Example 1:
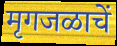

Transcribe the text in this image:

मृगजळाचें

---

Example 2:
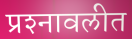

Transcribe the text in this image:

प्रश्नावलीत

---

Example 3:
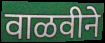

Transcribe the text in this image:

वाळवीने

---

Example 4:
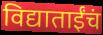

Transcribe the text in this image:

विद्याताईंचं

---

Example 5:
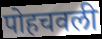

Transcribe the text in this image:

पोहचवली